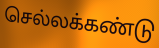
செல்லக்கண்டு